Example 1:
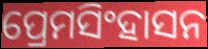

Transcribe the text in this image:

ପ୍ରେମସିଂହାସନ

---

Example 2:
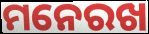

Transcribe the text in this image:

ମନେରଖ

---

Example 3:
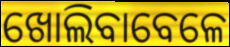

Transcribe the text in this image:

ଖୋଲିବାବେଳେ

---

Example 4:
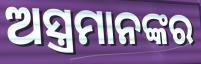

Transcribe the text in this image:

ଅସ୍ତ୍ରମାନଙ୍କର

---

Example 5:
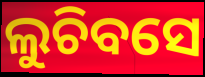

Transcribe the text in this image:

ଲୁଚିବସେ